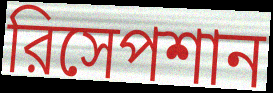
রিসেপশান